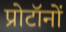
प्रोटॉनों